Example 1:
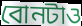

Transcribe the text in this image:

বোনটাও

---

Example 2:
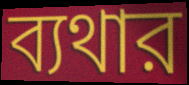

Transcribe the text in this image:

ব্যথার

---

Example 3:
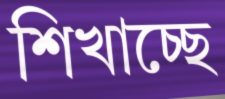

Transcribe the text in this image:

শিখাচ্ছে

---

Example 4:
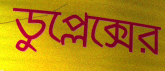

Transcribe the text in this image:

ডুপ্লেক্সের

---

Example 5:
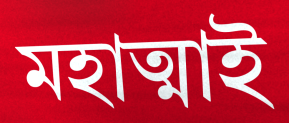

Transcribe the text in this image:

মহাত্মাই